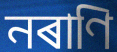
নৰাণি